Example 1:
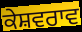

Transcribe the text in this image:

ਕੇਸ਼ਵਰਾਵ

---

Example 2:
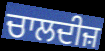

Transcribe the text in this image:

ਚਾਲਦੀਜ਼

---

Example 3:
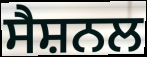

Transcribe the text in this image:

ਸੈਸ਼ਨਲ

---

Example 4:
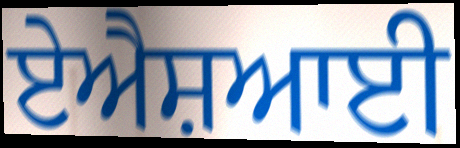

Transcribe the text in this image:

ਏਐਸ਼ਆਈ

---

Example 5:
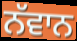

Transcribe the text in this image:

ਨੱਵਾਨ